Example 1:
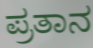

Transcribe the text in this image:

ಪ್ರತಾನ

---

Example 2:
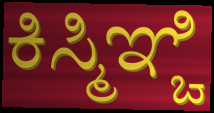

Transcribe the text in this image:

ಕಿಸ್ಮಿಞ್ಚಿ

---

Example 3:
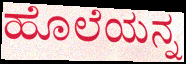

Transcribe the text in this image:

ಹೊಲೆಯನ್ನ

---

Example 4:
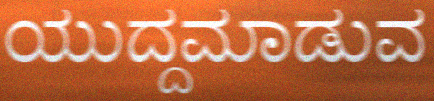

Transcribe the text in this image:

ಯುದ್ದಮಾಡುವ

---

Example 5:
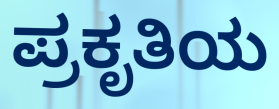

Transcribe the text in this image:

ಪ್ರಕೃತಿಯ